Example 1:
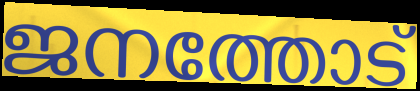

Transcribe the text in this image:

ജനത്തോട്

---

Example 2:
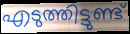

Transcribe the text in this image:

എടുത്തിട്ടുണ്ട്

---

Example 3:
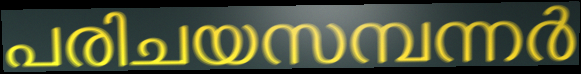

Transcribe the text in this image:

പരിചയസമ്പന്നർ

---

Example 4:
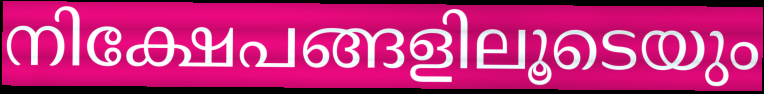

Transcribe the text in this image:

നിക്ഷേപങ്ങളിലൂടെയും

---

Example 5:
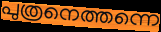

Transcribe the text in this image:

പുത്രനെത്തന്നെ